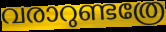
വരാറുണ്ടത്രേ